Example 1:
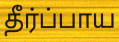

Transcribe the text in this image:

தீர்ப்பாய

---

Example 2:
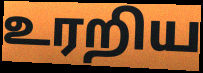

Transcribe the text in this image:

உரறிய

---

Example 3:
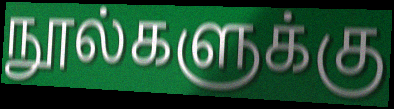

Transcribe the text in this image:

நூல்களுக்கு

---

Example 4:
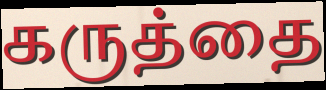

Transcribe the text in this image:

கருத்தை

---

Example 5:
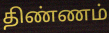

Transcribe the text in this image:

திண்ணம்